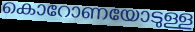
കൊറോണയോടുള്ള